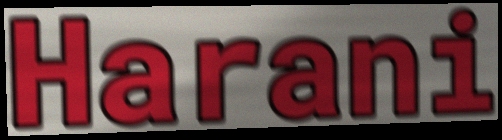
Harani